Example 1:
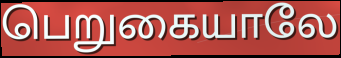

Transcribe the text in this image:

பெறுகையாலே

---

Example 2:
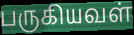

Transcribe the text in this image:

பருகியவள்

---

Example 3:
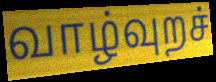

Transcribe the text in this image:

வாழ்வுறச்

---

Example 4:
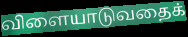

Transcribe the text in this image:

விளையாடுவதைக்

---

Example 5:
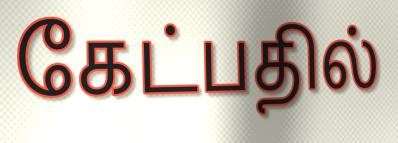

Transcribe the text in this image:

கேட்பதில்